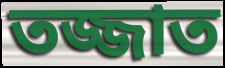
তজ্জাত